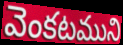
వెంకటముని